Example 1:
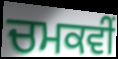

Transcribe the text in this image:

ਚਮਕਵੀਂ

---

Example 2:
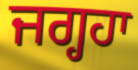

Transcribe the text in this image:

ਜਗ੍ਹਹਾ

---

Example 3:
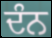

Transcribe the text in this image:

ਦੰਨ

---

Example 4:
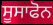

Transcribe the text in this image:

ਸੂਸਾਫੋਨ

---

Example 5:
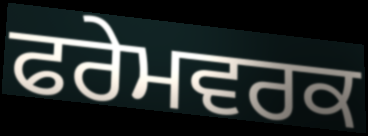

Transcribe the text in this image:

ਫਰੇਮਵਰਕ